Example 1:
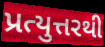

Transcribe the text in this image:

પ્રત્યુત્તરથી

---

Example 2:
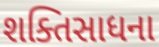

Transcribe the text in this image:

શક્તિસાધના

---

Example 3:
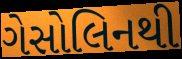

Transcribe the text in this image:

ગેસોલિનથી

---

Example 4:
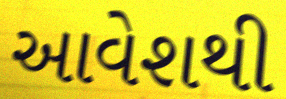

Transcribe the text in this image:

આવેશથી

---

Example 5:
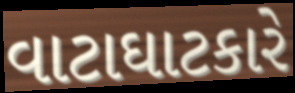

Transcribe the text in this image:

વાટાઘાટકારે